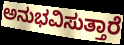
ಅನುಭವಿಸುತ್ತಾರೆ